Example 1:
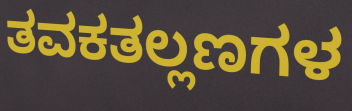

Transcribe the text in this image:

ತವಕತಲ್ಲಣಗಳ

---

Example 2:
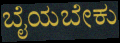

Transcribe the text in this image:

ಬೈಯಬೇಕು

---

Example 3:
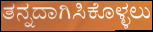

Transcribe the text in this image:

ತನ್ನದಾಗಿಸಿಕೊಳ್ಳಲು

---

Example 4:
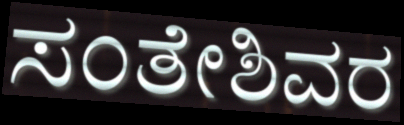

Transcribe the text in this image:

ಸಂತೇಶಿವರ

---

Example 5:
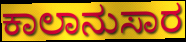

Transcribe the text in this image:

ಕಾಲಾನುಸಾರ